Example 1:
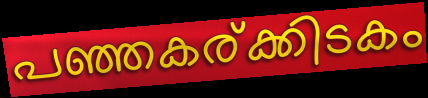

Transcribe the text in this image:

പഞ്ഞകര്ക്കിടകം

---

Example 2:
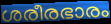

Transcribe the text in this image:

ശരീരഭാരം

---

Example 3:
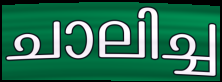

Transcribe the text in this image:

ചാലിച്ച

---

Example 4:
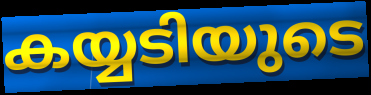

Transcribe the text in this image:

കയ്യടിയുടെ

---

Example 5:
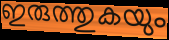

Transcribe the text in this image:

ഇരുത്തുകയും